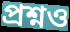
প্রশ্নও